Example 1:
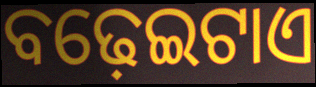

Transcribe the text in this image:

ବଢ଼େଇଟାଏ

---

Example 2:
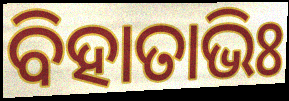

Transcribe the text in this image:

ବିହାତାଭିଃ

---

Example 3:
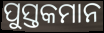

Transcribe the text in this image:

ପୁସ୍ତକମାନ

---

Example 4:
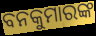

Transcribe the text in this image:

ବନକୁମାରଙ୍କ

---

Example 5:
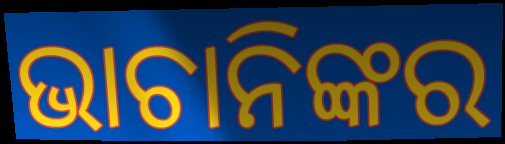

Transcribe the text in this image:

ଭାଚାନିଙ୍କର